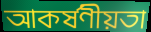
আকর্ষণীয়তা